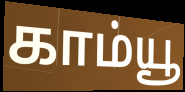
காம்யூ